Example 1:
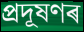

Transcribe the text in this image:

প্ৰদূষণৰ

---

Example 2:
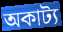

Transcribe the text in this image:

অকাট্য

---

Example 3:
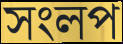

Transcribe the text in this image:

সংলপ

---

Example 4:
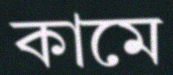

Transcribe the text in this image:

কামে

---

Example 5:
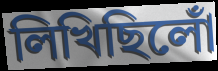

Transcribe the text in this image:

লিখিছিলোঁ